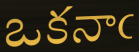
ఒకనాఁ